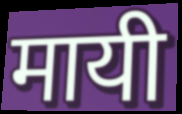
मायी